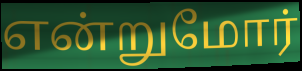
என்றுமோர்